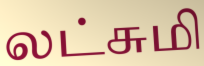
லட்சுமி